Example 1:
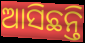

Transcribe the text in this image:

ଆସିଛନ୍ତି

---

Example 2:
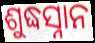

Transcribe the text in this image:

ଶୁଦ୍ଧସ୍ନାନ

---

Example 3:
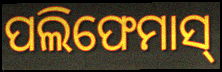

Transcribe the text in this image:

ପଲିଫେମାସ୍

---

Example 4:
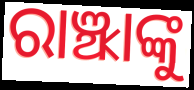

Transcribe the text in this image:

ରାଞ୍ଝାଙ୍କୁ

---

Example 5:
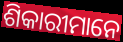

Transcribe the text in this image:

ଶିକାରୀମାନେ